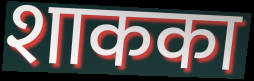
शाकका